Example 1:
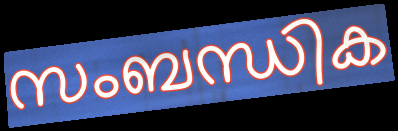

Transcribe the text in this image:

സംബന്ധിക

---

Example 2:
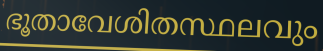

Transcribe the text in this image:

ഭൂതാവേശിതസ്ഥലവും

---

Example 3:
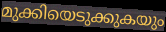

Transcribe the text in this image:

മുക്കിയെടുക്കുകയും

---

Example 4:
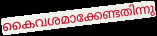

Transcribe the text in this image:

കൈവശമാക്കേണ്ടതിന്നു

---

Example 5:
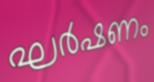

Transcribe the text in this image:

ഘർഷണം